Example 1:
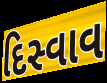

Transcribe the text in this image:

દિસ્વાવ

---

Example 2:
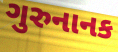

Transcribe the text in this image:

ગુરુનાનક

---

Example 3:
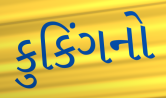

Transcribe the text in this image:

કુકિંગનો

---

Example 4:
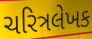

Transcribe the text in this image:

ચરિત્રલેખક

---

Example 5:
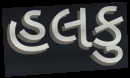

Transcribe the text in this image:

હલકુ